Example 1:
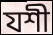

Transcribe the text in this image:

যশী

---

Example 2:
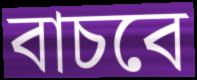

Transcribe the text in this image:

বাচবে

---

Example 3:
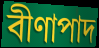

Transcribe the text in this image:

বীণাপাদ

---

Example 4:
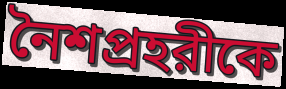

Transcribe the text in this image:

নৈশপ্রহরীকে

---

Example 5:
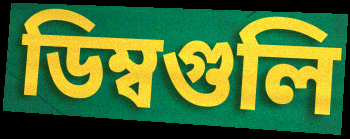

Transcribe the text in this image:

ডিম্বগুলি